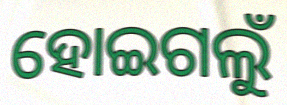
ହୋଇଗଲୁଁ